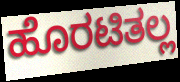
ಹೊರಟಿತಲ್ಲ